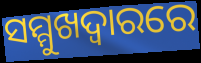
ସମ୍ମୁଖଦ୍ୱାରରେ